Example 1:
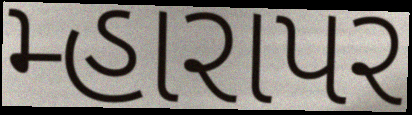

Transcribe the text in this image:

મ્હારાપર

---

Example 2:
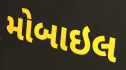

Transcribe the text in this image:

મોબાઇલ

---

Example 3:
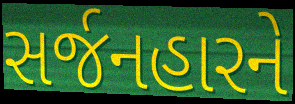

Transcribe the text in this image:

સર્જનહારને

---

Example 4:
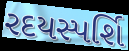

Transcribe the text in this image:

રદયસ્પર્શિ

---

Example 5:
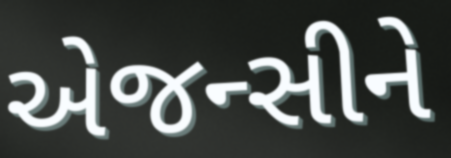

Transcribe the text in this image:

એજન્સીને